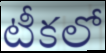
టీకలో